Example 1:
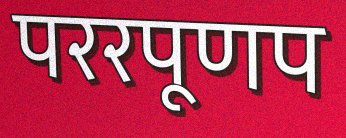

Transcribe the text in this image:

पररपूणप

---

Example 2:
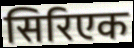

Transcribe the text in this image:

सिरिएक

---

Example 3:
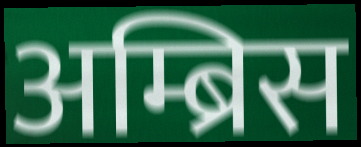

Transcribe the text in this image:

अम्ब्रिस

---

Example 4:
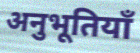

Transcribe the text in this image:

अनुभूतियाँ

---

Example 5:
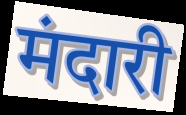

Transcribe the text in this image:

मंदारी